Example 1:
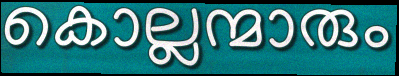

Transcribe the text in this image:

കൊല്ലന്മാരും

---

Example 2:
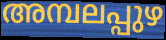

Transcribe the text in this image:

അമ്പലപ്പുഴ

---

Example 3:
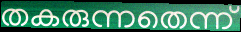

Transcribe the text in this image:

തകരുന്നതെന്ന്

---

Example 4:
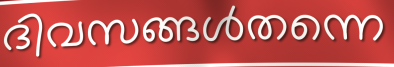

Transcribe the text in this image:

ദിവസങ്ങൾതന്നെ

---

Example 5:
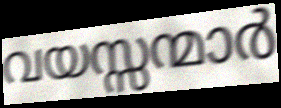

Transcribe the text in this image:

വയസ്സന്മാർ